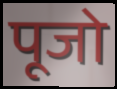
पूजो